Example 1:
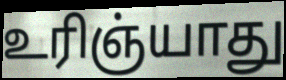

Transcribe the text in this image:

உரிஞ்யாது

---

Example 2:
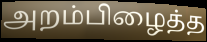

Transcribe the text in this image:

அறம்பிழைத்த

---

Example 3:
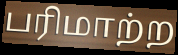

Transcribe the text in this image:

பரிமாற்ற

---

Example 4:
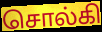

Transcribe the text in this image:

சொல்கி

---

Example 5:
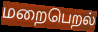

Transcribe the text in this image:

மறைபெறல்